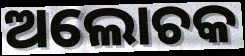
ଅଲୋଚକ